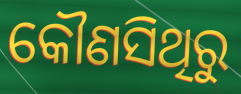
କୌଣସିଥିରୁ